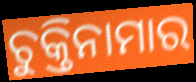
ଚୁକ୍ତିନାମାର